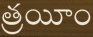
త్రయీం